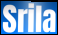
Srila